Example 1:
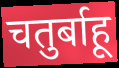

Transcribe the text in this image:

चतुर्बाहू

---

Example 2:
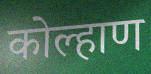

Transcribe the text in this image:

कोल्हाण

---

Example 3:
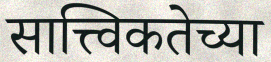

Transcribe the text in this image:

सात्त्विकतेच्या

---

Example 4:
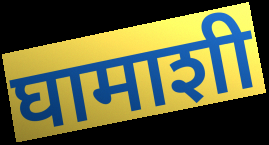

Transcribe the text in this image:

घामाशी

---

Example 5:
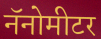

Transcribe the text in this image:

नॅनोमीटर